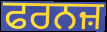
ਫਰਨਜ਼